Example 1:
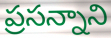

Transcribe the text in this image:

ప్రసన్నాని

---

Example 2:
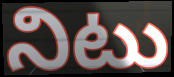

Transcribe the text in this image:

నిటు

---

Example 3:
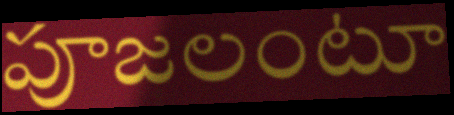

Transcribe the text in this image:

పూజలంటూ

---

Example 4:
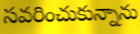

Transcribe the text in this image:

సవరించుకున్నాను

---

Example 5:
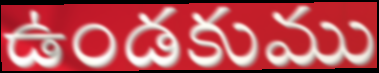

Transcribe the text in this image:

ఉండకుము